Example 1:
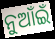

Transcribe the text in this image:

ନୁଆଁଇଁ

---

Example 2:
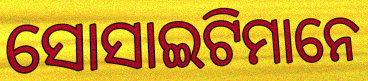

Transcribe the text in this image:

ସୋସାଇଟିମାନେ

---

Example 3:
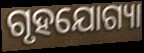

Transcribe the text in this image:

ଗୃହଯୋଗ୍ୟା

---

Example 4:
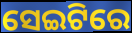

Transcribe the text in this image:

ସେଇଟିରେ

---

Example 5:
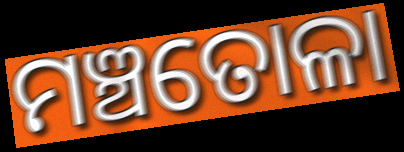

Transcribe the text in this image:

ମଞ୍ଚତୋଳା